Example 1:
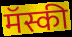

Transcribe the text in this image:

मॅस्की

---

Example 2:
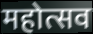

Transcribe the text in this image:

महोत्सव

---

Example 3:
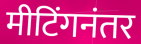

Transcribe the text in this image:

मीटिंगनंतर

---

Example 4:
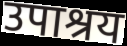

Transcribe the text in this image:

उपाश्रय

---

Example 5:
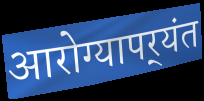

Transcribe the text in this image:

आरोग्यापर्यंत